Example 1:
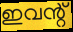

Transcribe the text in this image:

ഇവന്റ്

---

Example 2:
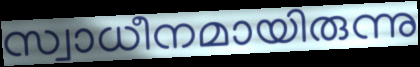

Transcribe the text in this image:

സ്വാധീനമായിരുന്നു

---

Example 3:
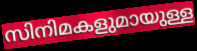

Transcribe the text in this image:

സിനിമകളുമായുള്ള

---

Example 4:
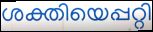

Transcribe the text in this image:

ശക്തിയെപ്പറ്റി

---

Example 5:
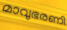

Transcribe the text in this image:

മാവുഭരണി